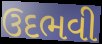
ઉદભવી